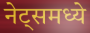
नेट्समध्ये